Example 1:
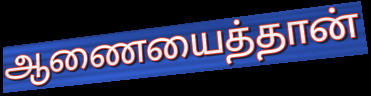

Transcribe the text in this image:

ஆணையைத்தான்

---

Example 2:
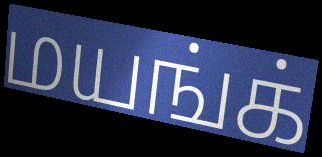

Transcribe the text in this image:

மயங்க்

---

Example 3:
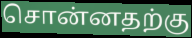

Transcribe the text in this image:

சொன்னதற்கு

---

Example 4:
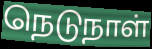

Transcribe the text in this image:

நெடுநாள்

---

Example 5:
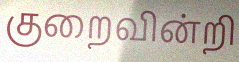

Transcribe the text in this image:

குறைவின்றி